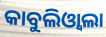
କାବୁଲିଓ୍ୱାଲା